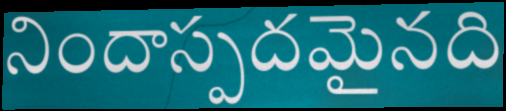
నిందాస్పదమైనది